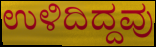
ಉಳಿದಿದ್ದವು